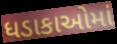
ધડાકાઓમાં